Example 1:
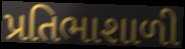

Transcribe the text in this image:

પ્રતિભાશાળી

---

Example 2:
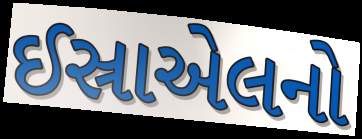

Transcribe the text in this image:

ઈસ્રાએલનો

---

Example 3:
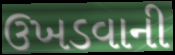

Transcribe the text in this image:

ઉખડવાની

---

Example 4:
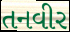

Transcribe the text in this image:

તનવીર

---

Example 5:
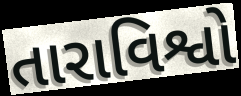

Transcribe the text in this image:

તારાવિશ્વો